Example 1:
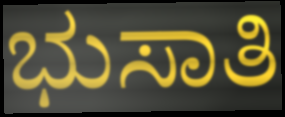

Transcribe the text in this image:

ಭುಸಾತಿ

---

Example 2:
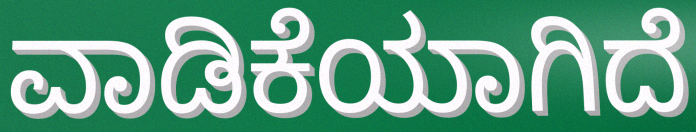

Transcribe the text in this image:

ವಾಡಿಕೆಯಾಗಿದೆ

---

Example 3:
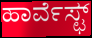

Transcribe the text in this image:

ಹಾರ್ವೆಸ್ಟ್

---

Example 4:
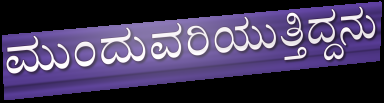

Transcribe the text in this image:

ಮುಂದುವರಿಯುತ್ತಿದ್ದನು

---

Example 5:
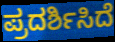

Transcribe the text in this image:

ಪ್ರದರ್ಶಿಸಿದೆ